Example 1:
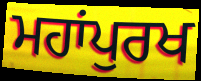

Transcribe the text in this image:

ਮਹਾਂਪੁਰਖ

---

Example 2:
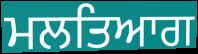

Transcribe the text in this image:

ਮਲਤਿਆਗ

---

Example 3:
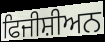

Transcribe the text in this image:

ਫਿਜੀਸ਼ੀਅਨ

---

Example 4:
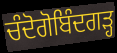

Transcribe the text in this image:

ਚੰਦੋਗੋਬਿੰਦਗੜ੍ਹ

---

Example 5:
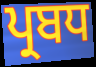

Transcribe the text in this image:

ਪ੍ਰਬਧ